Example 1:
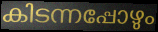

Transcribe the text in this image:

കിടന്നപ്പോഴും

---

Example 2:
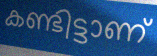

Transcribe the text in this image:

കണ്ടിട്ടാണ്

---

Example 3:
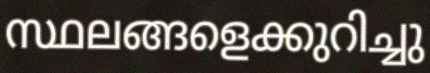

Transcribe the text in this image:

സ്ഥലങ്ങളെക്കുറിച്ചു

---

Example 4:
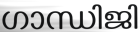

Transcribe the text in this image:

ഗാന്ധിജി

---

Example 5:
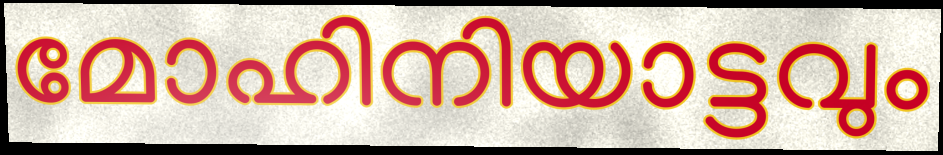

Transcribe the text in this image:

മോഹിനിയാട്ടവും